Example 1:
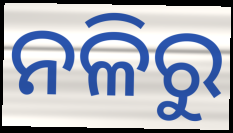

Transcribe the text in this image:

ନଳିରୁ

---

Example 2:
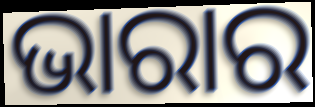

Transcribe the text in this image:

ଭାରାର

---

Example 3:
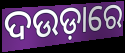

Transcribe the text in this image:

ଦଉଡ଼ାରେ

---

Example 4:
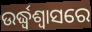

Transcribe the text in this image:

ଉର୍ଦ୍ଧ୍ଵଶ୍ୱାସରେ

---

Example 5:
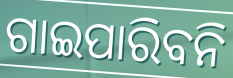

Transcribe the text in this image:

ଗାଇପାରିବନି